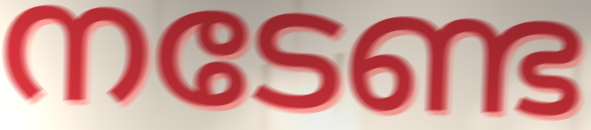
നടേണ്ട